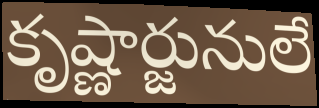
కృష్ణార్జునులే